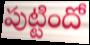
పుట్టిందో